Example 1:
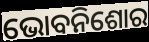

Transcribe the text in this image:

ଭୋବନିଶୋର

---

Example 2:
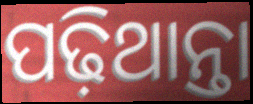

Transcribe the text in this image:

ପଢ଼ିଥାନ୍ତା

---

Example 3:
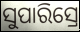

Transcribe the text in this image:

ସୁପାରିସ୍ରେ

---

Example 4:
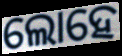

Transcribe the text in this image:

ଲୋହେ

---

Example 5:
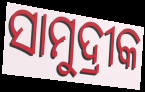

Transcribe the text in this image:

ସାମୁଦ୍ରୀକ